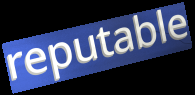
reputable